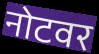
नोटवर